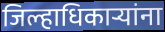
जिल्हाधिकाऱ्यांना